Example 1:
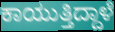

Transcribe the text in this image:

ಕಾಯುತ್ತಿದ್ದಾಳೆ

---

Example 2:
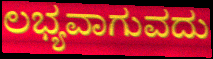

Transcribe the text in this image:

ಲಭ್ಯವಾಗುವದು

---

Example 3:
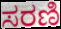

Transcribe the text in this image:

ಸರಣಿ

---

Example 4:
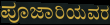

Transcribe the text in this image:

ಪೂಜಾರಿಯವರ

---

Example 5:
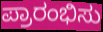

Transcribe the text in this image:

ಪ್ರಾರಂಭಿಸು